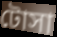
টোসা